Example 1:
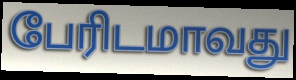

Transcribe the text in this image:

பேரிடமாவது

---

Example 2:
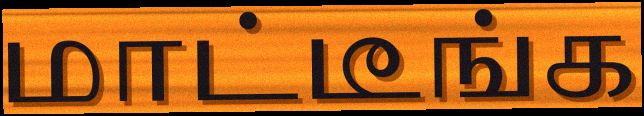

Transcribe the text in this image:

மாட்டீங்க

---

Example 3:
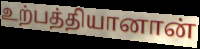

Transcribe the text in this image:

உற்பத்தியானான்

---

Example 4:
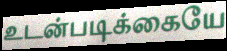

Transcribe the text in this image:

உடன்படிக்கையே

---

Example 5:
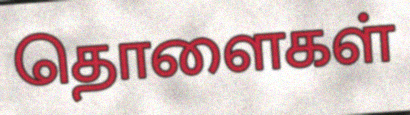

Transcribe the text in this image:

தொளைகள்